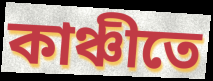
কাঞ্চীতে